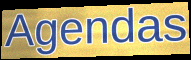
Agendas